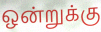
ஒன்றுக்கு